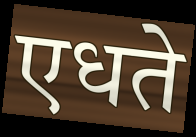
एधते